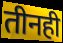
तीनही